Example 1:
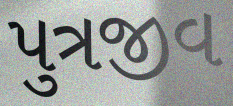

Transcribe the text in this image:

પુત્રજીવ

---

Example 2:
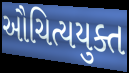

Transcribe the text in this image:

ઔચિત્યયુક્ત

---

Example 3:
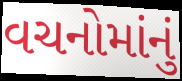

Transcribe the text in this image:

વચનોમાંનું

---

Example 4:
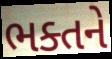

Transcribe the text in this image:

ભક્તને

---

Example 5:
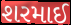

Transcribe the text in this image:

શરમાઈ